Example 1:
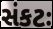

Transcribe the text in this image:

સંકટઃ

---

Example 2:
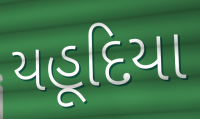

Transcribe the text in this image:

યહૂદિયા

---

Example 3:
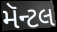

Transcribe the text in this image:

મૅન્ટલ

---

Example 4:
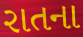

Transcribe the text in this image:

રાતના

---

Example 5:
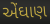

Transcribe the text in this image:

એંઘાણ